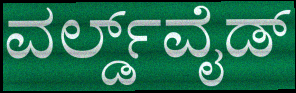
ವರ್ಲ್ಡ್‌ವೈಡ್